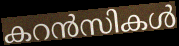
കറൻസികൾ